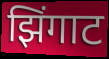
झिंगाट